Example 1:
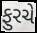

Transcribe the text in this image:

ફુરચે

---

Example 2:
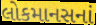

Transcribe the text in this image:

લોકમાનસનાં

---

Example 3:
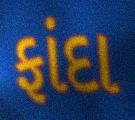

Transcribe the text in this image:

ફાંદા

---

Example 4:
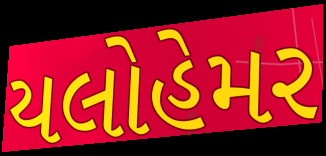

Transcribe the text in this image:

યલોહેમર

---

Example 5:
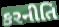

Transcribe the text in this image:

કરનીતિ